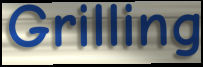
Grilling